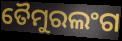
ତୈମୁରଲଂଗ